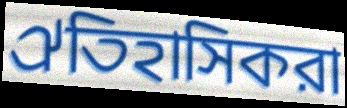
ঐতিহাসিকরা